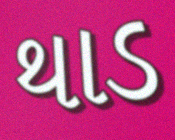
થાડ